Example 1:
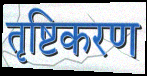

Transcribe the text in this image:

तृष्टिकरण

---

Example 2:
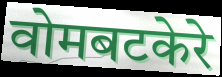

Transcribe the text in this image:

वोमबटकेरे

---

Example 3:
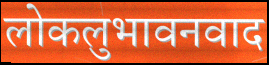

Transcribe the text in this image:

लोकलुभावनवाद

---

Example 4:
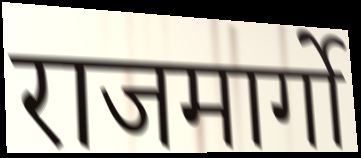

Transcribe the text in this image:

राजमार्गो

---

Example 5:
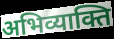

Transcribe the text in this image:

अभिव्याक्ति